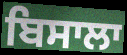
ਬਿਸਾਲਾ